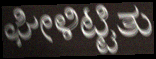
ಘೀಳಿಟ್ಟಿತು